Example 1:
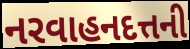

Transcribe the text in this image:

નરવાહનદત્તની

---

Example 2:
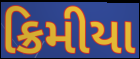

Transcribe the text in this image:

ક્રિમીયા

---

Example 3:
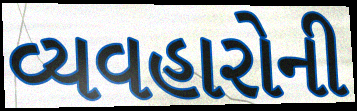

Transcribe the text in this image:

વ્યવહારોની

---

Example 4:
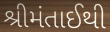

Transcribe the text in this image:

શ્રીમંતાઈથી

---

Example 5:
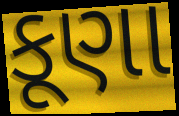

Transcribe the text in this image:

કૂણા